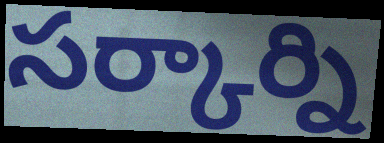
సర్కార్ని